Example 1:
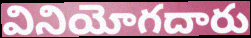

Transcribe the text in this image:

వినియోగదారు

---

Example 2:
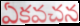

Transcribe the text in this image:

ఏకవచన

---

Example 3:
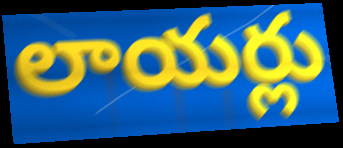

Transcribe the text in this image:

లాయర్లు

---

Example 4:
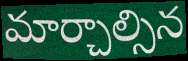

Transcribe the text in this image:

మార్చాల్సిన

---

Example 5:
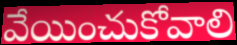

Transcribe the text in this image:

వేయించుకోవాలి